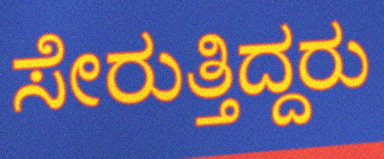
ಸೇರುತ್ತಿದ್ದರು